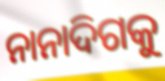
ନାନାଦିଗକୁ